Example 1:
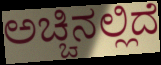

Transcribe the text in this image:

ಅಚ್ಚಿನಲ್ಲಿದೆ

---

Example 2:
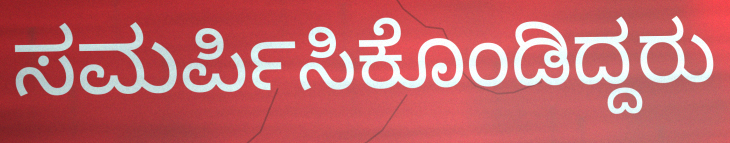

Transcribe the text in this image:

ಸಮರ್ಪಿಸಿಕೊಂಡಿದ್ದರು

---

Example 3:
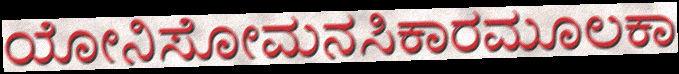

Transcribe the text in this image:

ಯೋನಿಸೋಮನಸಿಕಾರಮೂಲಕಾ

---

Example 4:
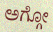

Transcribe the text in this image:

ಅಗ್ಗೋ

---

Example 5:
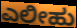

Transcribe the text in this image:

ಎಲೀಹು